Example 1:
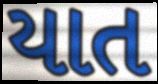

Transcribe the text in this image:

યાત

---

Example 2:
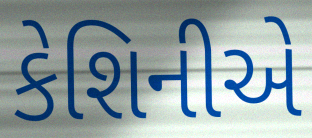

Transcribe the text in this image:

કેશિનીએ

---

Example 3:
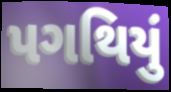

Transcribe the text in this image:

પગથિયું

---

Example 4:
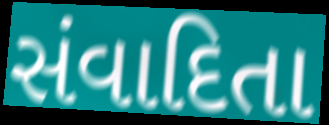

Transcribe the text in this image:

સંવાદિતા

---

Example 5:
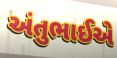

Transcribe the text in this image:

અંતુભાઈએ